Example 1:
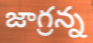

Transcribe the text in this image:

జాగ్రన్న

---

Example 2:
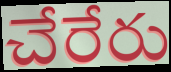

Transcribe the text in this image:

చేరేరు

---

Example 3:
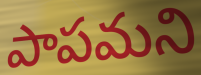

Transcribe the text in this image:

పాపమని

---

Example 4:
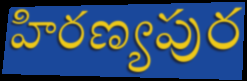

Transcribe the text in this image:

హిరణ్యపుర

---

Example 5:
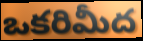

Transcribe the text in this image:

ఒకరిమీద